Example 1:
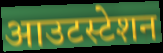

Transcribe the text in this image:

आउटस्टेशन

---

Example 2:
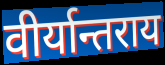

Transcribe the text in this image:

वीर्यान्तराय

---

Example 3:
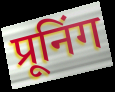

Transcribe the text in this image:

प्रूनिंग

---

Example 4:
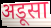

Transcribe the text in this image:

अडूसा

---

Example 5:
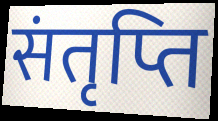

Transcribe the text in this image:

संतृप्ति